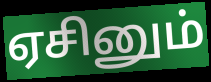
ஏசினும்